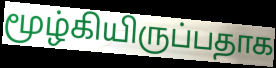
மூழ்கியிருப்பதாக